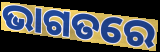
ଭାଗତରେ